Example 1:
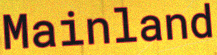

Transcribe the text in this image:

Mainland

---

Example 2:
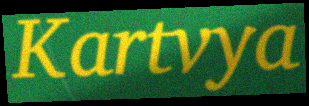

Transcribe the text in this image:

Kartvya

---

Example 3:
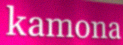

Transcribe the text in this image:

kamona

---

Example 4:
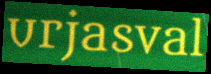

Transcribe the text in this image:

urjasval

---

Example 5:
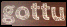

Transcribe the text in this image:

gottu